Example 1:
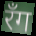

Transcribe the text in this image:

रॅंग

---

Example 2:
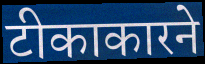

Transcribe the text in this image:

टीकाकारने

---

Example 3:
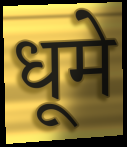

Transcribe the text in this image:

धूमे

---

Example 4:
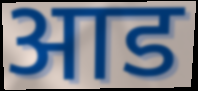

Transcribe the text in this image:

आड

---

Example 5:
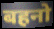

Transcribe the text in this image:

बहनो